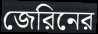
জেরিনের